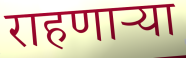
राहणाऱ्या